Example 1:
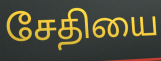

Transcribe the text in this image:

சேதியை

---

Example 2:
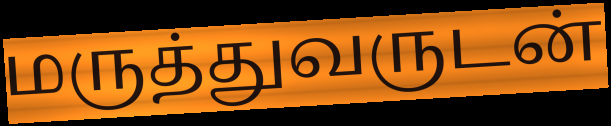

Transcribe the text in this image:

மருத்துவருடன்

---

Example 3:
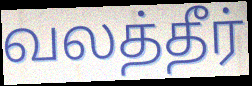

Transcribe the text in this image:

வலத்தீர்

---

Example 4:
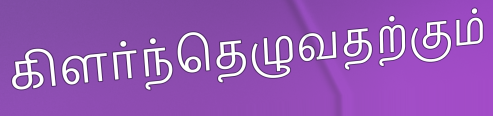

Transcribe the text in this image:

கிளர்ந்தெழுவதற்கும்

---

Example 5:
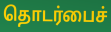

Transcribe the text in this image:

தொடர்பைச்